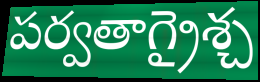
పర్వతాగ్రైశ్చ